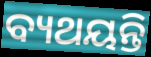
ବ୍ୟଥୟନ୍ତି